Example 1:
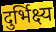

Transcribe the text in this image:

दुर्भिक्ष्य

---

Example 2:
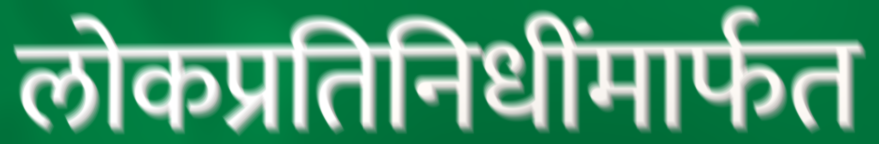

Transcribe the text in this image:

लोकप्रतिनिधींमार्फत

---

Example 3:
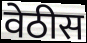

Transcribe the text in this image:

वेठीस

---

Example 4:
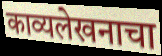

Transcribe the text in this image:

काव्यलेखनाचा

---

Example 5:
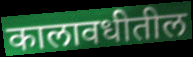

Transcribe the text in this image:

कालावधीतील